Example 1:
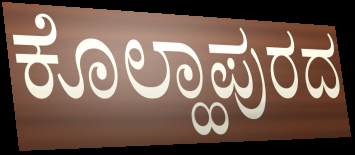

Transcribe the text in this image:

ಕೊಲ್ಹಾಪುರದ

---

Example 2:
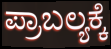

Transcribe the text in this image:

ಪ್ರಾಬಲ್ಯಕ್ಕೆ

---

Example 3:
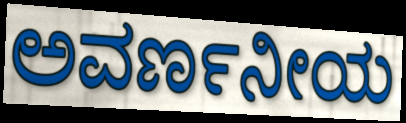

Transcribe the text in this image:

ಅವರ್ಣನೀಯ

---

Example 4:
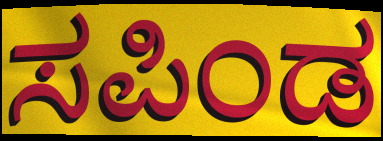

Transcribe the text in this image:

ಸಪಿಂಡ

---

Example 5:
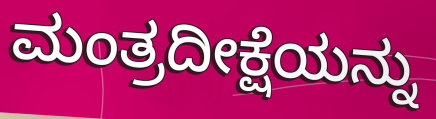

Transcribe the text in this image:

ಮಂತ್ರದೀಕ್ಷೆಯನ್ನು